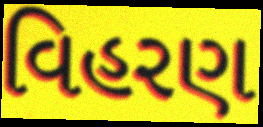
વિહરણ